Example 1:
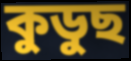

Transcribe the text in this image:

কুডুছ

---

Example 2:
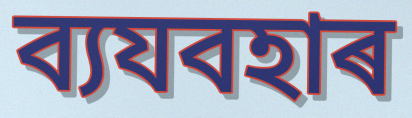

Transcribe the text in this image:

ব্যযবহাৰ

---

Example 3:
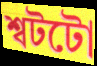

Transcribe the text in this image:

শ্বটটো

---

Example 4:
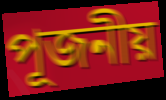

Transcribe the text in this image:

পূজনীয়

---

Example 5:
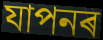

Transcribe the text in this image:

যাপনৰ